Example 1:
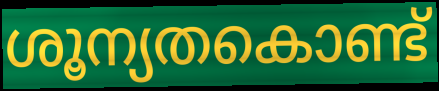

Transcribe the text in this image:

ശൂന്യതകൊണ്ട്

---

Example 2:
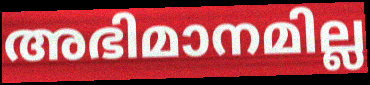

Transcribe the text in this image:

അഭിമാനമില്ല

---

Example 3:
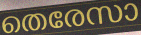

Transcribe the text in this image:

തെരേസാ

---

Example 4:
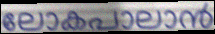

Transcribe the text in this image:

ലോകപാലാൻ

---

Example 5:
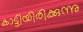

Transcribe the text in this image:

കാട്ടിയിരിക്കുന്നു